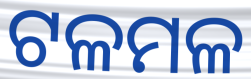
ଟଳମଳ